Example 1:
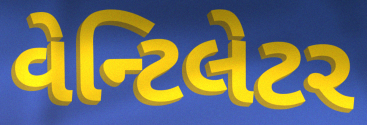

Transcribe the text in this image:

વેન્ટિલેટર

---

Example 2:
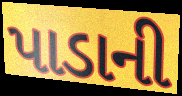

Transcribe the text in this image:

પાડાની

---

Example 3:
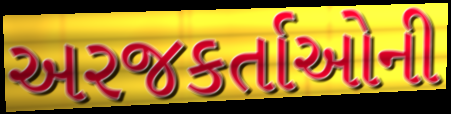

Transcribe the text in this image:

અરજકર્તાઓની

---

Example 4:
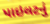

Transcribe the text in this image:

પાઇલટનું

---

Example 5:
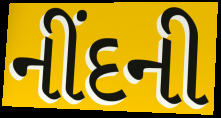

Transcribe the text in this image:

નીંદની